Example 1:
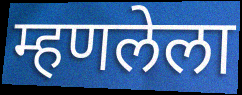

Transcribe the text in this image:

म्हणलेला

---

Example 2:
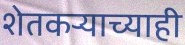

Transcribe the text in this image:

शेतकऱ्याच्याही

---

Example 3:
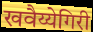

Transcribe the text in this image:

खवैय्येगिरी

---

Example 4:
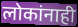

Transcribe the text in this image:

लोकांनाही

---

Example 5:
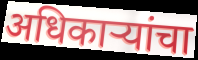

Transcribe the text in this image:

अधिकाऱ्यांचा